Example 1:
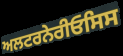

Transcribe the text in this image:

ਅਲਟਰਨੇਰੀਓਸਿਸ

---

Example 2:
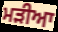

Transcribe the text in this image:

ਮਡ਼ੀਆ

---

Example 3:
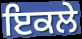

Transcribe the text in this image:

ਇਕਲੇ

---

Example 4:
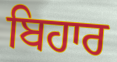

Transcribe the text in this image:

ਬਿਹਾਰ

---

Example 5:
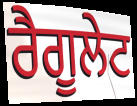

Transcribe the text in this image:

ਰੈਗੂਲੇਟ